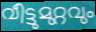
വീട്ടുമുറ്റവും